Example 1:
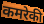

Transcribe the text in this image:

कमरेकी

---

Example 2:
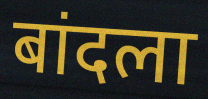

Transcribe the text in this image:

बांदला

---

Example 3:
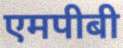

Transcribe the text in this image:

एमपीबी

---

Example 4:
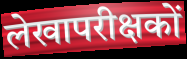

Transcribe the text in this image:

लेखापरीक्षकों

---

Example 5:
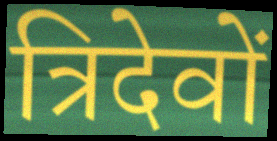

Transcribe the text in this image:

त्रिदेवों